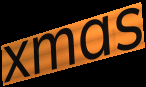
xmas